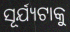
ସୂର୍ଯ୍ୟଟାକୁ